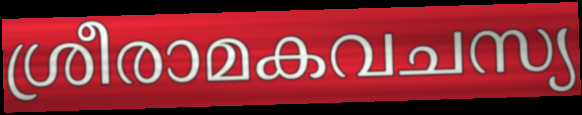
ശ്രീരാമകവചസ്യ